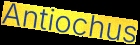
Antiochus